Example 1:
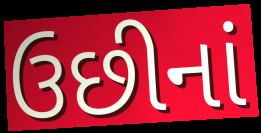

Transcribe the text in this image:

ઉછીનાં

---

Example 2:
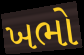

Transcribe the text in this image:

ખભો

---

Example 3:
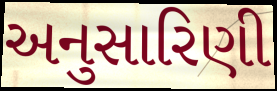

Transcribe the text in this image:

અનુસારિણી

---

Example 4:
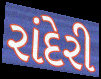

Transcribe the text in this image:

રાંદેરી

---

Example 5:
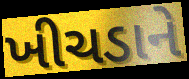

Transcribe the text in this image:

ખીચડાને